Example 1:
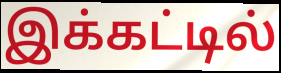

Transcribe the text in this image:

இக்கட்டில்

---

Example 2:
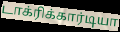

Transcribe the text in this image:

டாக்ரிக்கார்டியா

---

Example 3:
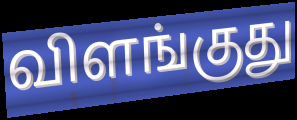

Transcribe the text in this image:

விளங்குது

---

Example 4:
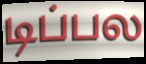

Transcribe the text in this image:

டிப்பல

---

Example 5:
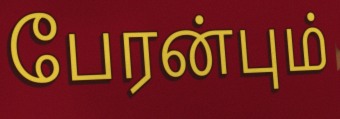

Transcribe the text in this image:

பேரன்பும்